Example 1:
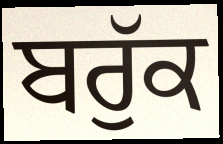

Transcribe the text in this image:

ਬਰੁੱਕ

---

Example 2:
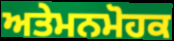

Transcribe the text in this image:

ਅਤੇਮਨਮੋਹਕ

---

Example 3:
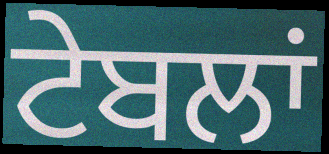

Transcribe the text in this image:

ਟੇਬਲਾਂ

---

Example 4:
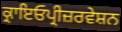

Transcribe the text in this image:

ਕ੍ਰਾਇਓਪ੍ਰੀਜ਼ਰਵੇਸ਼ਨ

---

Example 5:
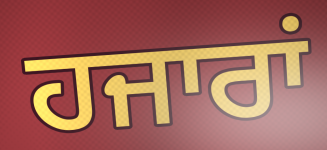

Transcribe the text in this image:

ਹਜਾਰਾਂ